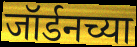
जॉर्डनच्या